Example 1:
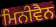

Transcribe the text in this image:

ਮਿਨੀਵੈਨ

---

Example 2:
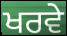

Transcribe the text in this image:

ਖਰਵੇ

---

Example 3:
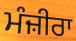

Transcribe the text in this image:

ਮੰਜ਼ੀਰਾ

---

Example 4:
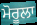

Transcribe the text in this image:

ਮੋਰੂਲਾ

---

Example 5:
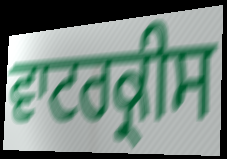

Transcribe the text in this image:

ਵਾਟਰਕ੍ਰੀਸ